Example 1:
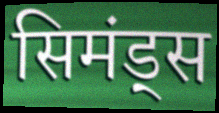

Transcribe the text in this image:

सिमंड्स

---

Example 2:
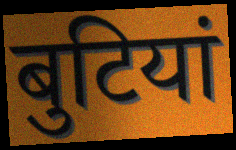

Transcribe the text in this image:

बुटियां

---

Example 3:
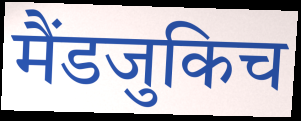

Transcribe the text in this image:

मैंडजुकिच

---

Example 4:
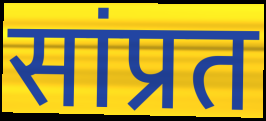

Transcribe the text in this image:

सांप्रत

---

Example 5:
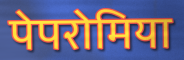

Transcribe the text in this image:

पेपरोमिया